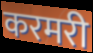
करमरी